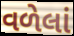
વળેલાં